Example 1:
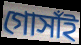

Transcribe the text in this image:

গোসাঁই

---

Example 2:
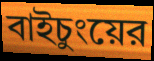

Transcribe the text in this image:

বাইচুংয়ের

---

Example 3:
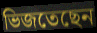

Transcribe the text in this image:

ভিজতেছেন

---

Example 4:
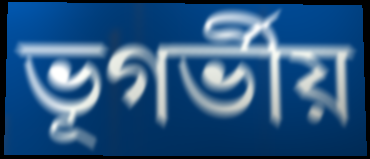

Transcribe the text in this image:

ভূগর্ভীয়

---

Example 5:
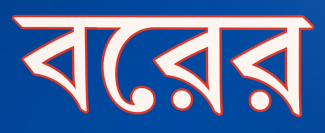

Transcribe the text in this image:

বরের